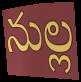
నుల్ల